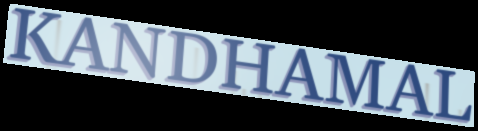
KANDHAMAL